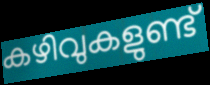
കഴിവുകളുണ്ട്